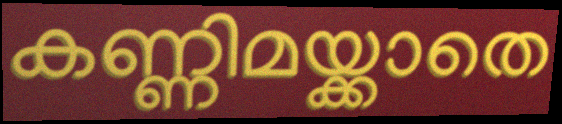
കണ്ണിമയ്ക്കാതെ